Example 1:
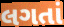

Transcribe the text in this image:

લગતાં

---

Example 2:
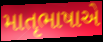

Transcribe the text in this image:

માતૃભાષાએ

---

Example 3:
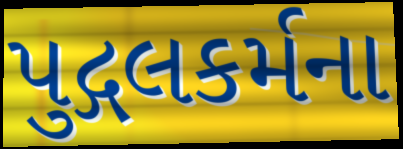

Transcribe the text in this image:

પુદ્ગલકર્મના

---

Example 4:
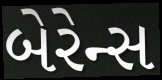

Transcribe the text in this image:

બેરેન્સ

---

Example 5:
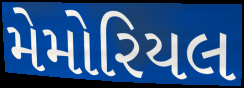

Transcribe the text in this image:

મેમોરિયલ